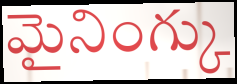
మైనింగ్కు